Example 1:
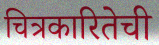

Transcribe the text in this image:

चित्रकारितेची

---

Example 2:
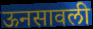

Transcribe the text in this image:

ऊनसावली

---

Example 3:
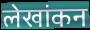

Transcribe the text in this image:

लेखांकन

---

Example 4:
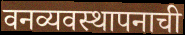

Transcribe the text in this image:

वनव्यवस्थापनाची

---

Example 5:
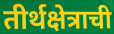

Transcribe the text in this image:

तीर्थक्षेत्राची